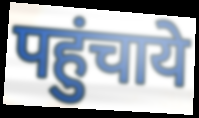
पहुंचाये